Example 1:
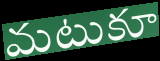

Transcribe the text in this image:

మటుకూ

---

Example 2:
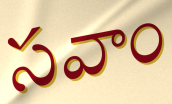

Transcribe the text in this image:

సవాం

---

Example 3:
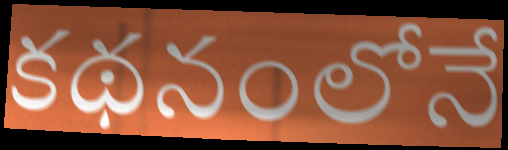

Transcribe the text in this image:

కథనంలోనే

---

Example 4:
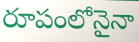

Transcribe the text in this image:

రూపంలోనైనా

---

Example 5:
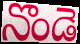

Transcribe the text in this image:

నొండె